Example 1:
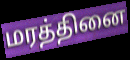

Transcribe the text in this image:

மரத்தினை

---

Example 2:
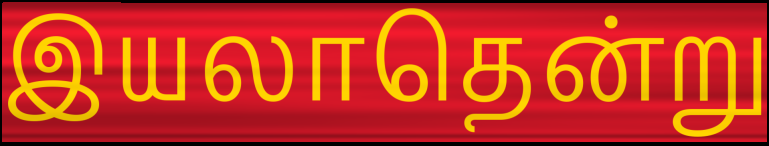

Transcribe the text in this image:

இயலாதென்று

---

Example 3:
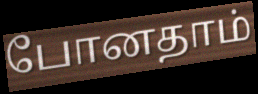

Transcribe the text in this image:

போனதாம்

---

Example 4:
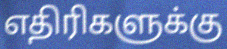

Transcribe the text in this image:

எதிரிகளுக்கு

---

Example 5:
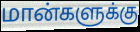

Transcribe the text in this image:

மான்களுக்கு